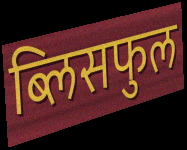
ब्लिसफुल